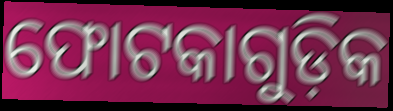
ଫୋଟକାଗୁଡ଼ିକ